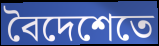
বৈদেশেতে